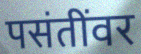
पसंतींवर